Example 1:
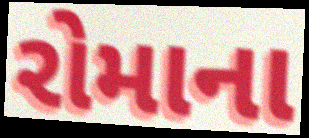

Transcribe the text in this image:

રોમાના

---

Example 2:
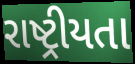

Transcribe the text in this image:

રાષ્ટ્રીયતા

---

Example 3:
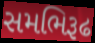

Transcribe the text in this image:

સમભિરૂઢ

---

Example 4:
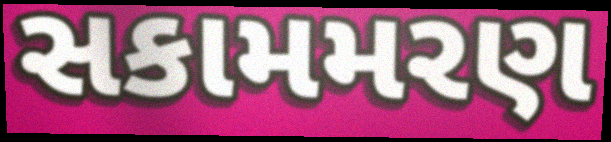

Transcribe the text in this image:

સકામમરણ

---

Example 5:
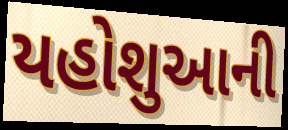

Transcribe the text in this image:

યહોશુઆની